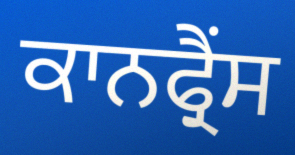
ਕਾਨਫ੍ਰੈਂਸ